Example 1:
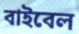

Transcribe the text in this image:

বাইবেল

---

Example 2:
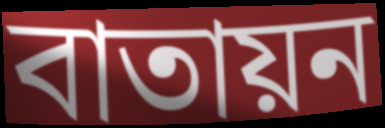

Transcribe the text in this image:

বাতায়ন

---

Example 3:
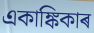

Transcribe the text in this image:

একাঙ্কিকাৰ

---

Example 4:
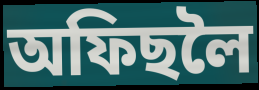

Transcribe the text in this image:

অফিছলৈ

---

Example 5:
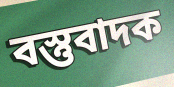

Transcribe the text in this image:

বস্তুবাদক